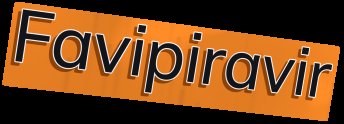
Favipiravir